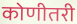
कोणीतरी